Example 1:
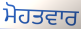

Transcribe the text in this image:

ਮੋਹਤਵਾਰ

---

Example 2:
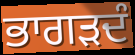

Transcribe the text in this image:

ਭਾਗੜਦੰ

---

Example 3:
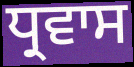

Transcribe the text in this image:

ਧ੍ਰਵਾਸ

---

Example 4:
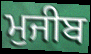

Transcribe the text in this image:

ਮੁਜੀਬ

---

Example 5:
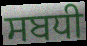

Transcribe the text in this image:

ਸਬਧੀ